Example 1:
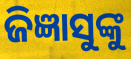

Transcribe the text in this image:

ଜିଜ୍ଞାସୁଙ୍କୁ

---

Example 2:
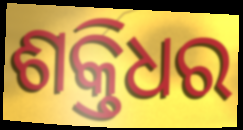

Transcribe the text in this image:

ଶକ୍ତିଧର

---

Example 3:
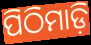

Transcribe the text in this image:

ପିଠିମାଡ଼ି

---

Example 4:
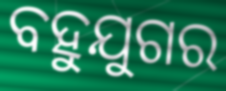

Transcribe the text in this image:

ବହୁଯୁଗର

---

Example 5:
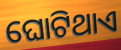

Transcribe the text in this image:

ଘୋଟିଥାଏ